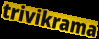
trivikrama